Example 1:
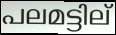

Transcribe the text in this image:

പലമട്ടില്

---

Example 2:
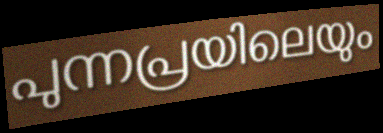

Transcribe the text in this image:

പുന്നപ്രയിലെയും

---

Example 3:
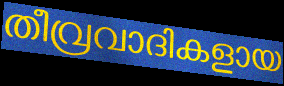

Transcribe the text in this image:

തീവ്രവാദികളായ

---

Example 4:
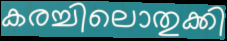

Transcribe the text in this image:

കരച്ചിലൊതുക്കി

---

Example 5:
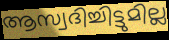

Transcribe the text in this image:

ആസ്വദിച്ചിട്ടുമില്ല